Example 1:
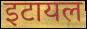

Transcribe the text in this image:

इटायल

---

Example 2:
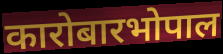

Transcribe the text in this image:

कारोबारभोपाल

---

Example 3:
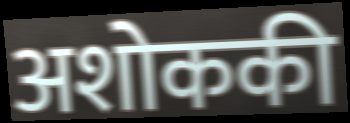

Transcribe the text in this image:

अशोककी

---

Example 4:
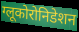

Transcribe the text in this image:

ग्लूकोरोनिडेशन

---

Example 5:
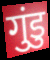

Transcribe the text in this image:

गुंडु